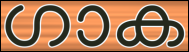
ഗാക